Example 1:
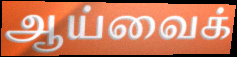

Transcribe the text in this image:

ஆய்வைக்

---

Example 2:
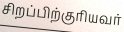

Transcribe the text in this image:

சிறப்பிற்குரியவர்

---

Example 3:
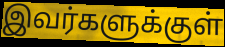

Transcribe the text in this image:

இவர்களுக்குள்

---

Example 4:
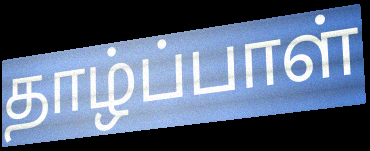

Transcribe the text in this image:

தாழ்ப்பாள்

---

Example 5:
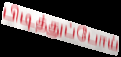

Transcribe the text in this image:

பிடித்துப்போய்